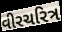
વીરચરિત્ર